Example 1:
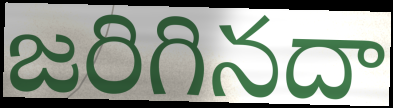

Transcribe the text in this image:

జరిగినదా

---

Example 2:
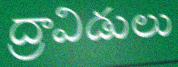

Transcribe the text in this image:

ద్రావిడులు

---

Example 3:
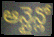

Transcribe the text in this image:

ఆన్లైన్లో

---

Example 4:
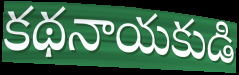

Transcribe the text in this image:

కథనాయకుడి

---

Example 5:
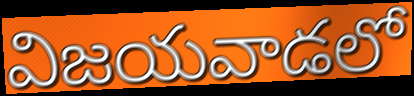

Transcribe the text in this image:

విజయవాడలో